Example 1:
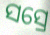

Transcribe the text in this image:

ସସ୍ରେ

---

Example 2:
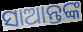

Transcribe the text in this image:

ସାଆନ୍ତଙ୍କ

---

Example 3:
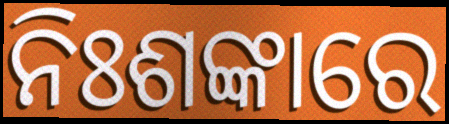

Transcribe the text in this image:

ନିଃଶଙ୍କାରେ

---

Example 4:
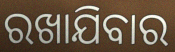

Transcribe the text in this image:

ରଖାଯିବାର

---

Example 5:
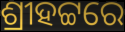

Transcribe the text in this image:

ଶ୍ରୀହଟ୍ଟରେ